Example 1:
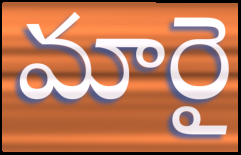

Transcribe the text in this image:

మారై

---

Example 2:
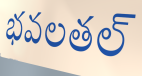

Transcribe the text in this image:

భవలతల్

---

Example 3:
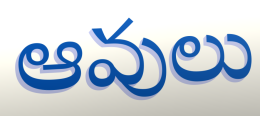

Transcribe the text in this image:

ఆవులు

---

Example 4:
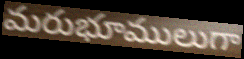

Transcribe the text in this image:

మరుభూములుగా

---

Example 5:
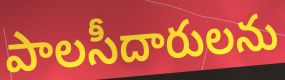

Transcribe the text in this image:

పాలసీదారులను